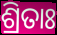
ଶ୍ରିତାଃ